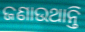
ଜଣାଉଥାନ୍ତି